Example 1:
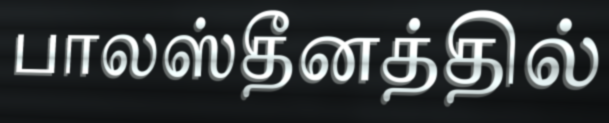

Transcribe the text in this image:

பாலஸ்தீனத்தில்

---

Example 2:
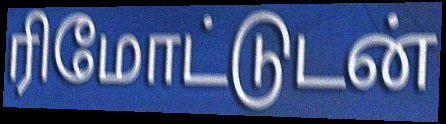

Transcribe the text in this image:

ரிமோட்டுடன்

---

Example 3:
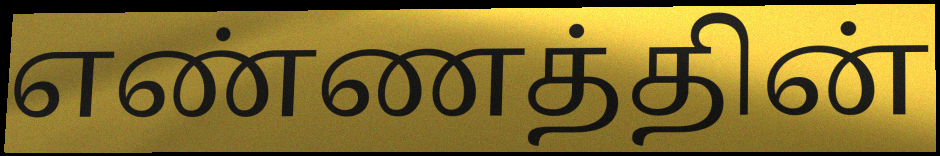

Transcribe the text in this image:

எண்ணத்தின்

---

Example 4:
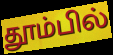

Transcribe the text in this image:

தூம்பில்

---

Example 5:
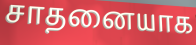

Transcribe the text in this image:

சாதனையாக